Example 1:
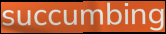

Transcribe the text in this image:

succumbing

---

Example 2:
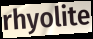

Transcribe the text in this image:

rhyolite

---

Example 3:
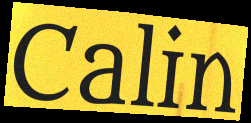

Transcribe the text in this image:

Calin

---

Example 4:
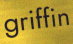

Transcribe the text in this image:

griffin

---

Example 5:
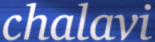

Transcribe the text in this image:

chalavi